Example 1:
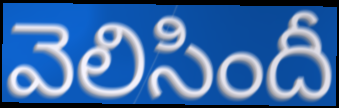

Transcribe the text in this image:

వెలిసిందీ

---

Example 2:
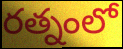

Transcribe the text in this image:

రత్నంలో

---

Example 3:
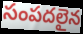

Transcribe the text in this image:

సంపదలైన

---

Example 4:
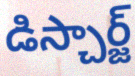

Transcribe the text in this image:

డిస్చార్జ్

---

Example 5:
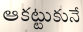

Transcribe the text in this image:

ఆకట్టుకునే